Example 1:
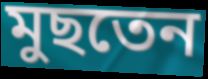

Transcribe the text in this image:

মুছতেন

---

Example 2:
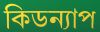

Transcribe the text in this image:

কিডন্যাপ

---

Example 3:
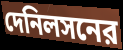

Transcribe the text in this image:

দেনিলসনের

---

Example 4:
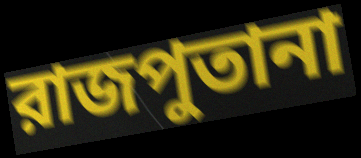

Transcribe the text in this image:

রাজপুতানা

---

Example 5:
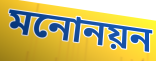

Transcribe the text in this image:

মনোনয়ন